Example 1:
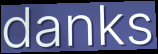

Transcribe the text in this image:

danks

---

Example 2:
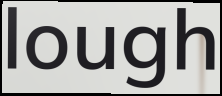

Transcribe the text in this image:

lough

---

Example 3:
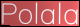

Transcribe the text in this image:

Polala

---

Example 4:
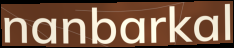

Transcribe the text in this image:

nanbarkal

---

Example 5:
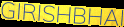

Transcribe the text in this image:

GIRISHBHAI